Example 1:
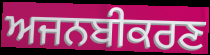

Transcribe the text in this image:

ਅਜਨਬੀਕਰਣ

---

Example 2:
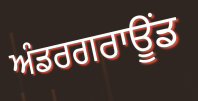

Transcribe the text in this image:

ਅੰਡਰਗਰਾਊਂਡ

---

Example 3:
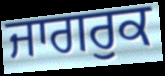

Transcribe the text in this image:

ਜਾਗਰੁਕ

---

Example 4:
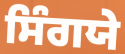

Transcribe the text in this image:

ਸਿੰਗਯੇ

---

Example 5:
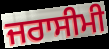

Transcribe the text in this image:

ਜਰਾਸੀਮੀ